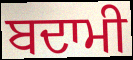
ਬਦਾਮੀ